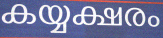
കയ്യക്ഷരം